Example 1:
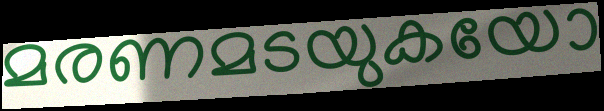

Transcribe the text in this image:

മരണമടയുകയോ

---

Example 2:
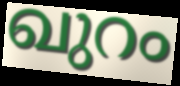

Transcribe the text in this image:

ഖുറം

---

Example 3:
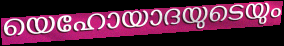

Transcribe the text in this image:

യെഹോയാദയുടെയും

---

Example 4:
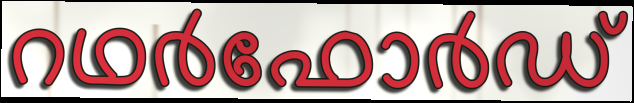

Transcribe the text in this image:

റഥർഫോർഡ്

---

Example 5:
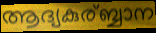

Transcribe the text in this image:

ആദ്യകുര്ബ്ബാന